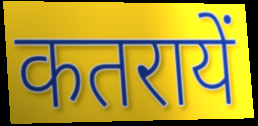
कतरायें